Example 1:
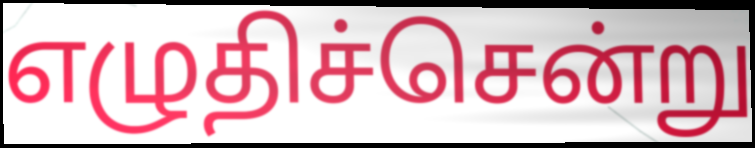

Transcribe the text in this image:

எழுதிச்சென்று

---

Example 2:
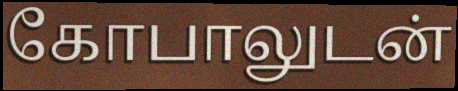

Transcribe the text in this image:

கோபாலுடன்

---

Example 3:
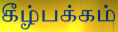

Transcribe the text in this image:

கீழ்பக்கம்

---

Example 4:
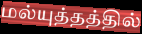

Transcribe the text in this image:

மல்யுத்தத்தில்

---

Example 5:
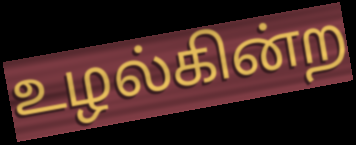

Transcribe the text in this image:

உழல்கின்ற